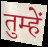
तुम्हें